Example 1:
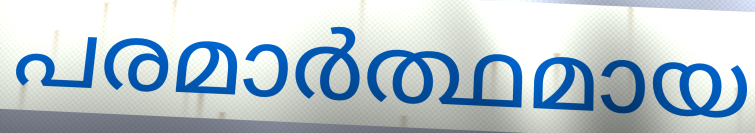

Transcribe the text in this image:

പരമാർത്ഥമായ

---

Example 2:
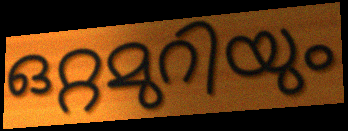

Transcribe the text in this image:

ഒറ്റമുറിയും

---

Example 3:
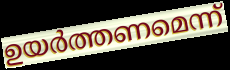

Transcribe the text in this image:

ഉയർത്തണമെന്ന്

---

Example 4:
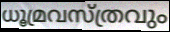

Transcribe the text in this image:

ധൂമ്രവസ്ത്രവും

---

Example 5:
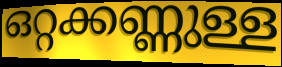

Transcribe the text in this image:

ഒറ്റക്കണ്ണുള്ള